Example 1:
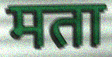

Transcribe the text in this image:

मता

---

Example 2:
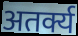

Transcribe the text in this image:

अतर्क्य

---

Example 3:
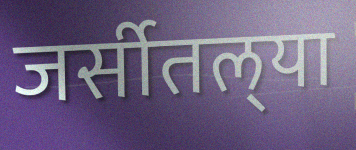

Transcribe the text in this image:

जर्सीतल्या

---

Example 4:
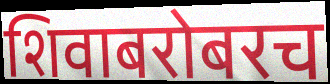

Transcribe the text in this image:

शिवाबरोबरच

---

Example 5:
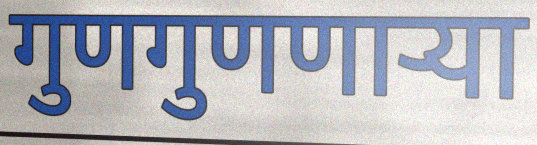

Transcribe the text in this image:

गुणगुणणाऱ्या